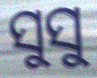
ସୁସୁ